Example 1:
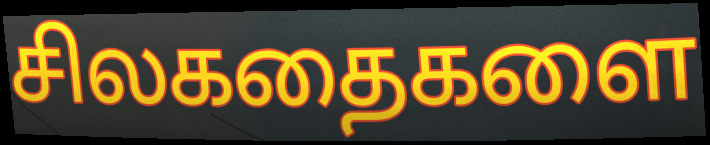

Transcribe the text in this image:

சிலகதைகளை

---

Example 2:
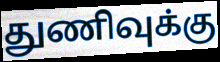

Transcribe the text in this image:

துணிவுக்கு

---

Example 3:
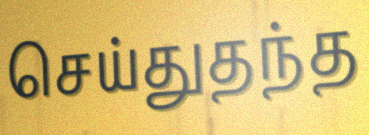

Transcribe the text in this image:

செய்துதந்த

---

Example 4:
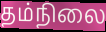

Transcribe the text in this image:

தம்நிலை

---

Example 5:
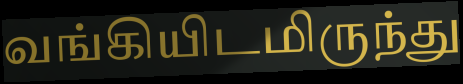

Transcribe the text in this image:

வங்கியிடமிருந்து